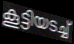
കൂട്ടിയടച്ച്